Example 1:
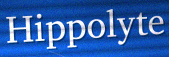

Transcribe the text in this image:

Hippolyte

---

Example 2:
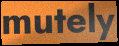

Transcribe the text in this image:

mutely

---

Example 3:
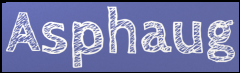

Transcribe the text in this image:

Asphaug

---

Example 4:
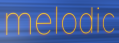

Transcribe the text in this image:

melodic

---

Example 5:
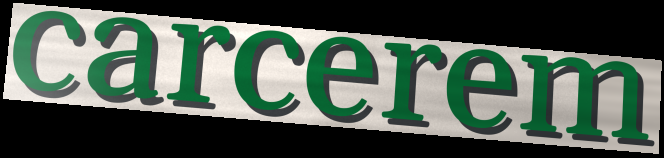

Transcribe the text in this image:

carcerem